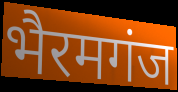
भैरमगंज